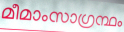
മീമാംസാഗ്രന്ഥം